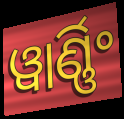
ୱାର୍ଣ୍ଣିଂ